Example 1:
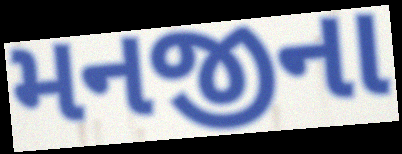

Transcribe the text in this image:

મનજીના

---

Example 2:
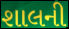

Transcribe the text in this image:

શાલની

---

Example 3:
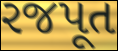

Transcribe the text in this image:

રજપૂત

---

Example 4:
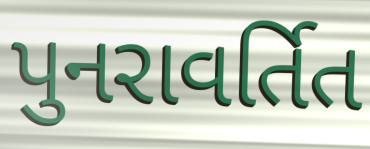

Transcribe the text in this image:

પુનરાવર્તિત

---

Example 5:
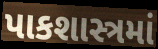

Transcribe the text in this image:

પાકશાસ્ત્રમાં